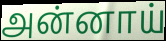
அன்னாய்